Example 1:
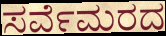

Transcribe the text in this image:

ಸರ್ವೆಮರದ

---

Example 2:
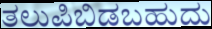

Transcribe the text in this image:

ತಲುಪಿಬಿಡಬಹುದು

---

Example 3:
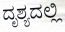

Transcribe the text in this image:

ದೃಶ್ಯದಲ್ಲಿ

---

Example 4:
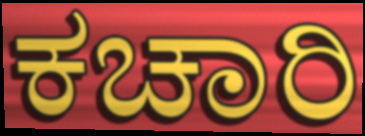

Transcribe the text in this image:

ಕಚಾರಿ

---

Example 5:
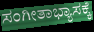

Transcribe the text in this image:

ಸಂಗೀತಾಭ್ಯಾಸಕ್ಕೆ